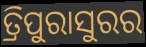
ତ୍ରିପୁରାସୁରର